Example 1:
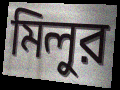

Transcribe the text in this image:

মিলুর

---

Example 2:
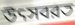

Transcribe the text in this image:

উৎসবরত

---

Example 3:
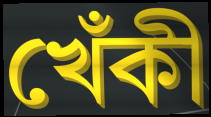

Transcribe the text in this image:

খেঁকী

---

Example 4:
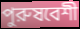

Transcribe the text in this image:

পুরুষবেশী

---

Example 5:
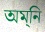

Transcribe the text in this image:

অম্‌নি